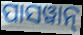
ପାସୱାନ୍